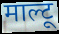
माल्टू